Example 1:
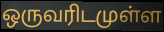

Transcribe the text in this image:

ஒருவரிடமுள்ள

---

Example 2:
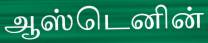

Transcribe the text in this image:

ஆஸ்டெனின்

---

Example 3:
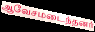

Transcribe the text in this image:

ஆவேசமடைந்தனர்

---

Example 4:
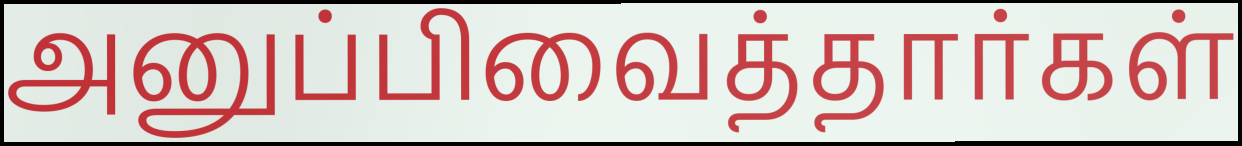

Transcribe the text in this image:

அனுப்பிவைத்தார்கள்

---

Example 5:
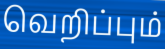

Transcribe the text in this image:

வெறிப்பும்